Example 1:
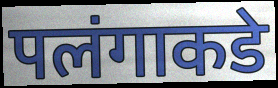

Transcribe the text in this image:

पलंगाकडे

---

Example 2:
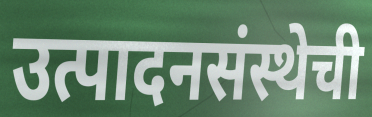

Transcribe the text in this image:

उत्पादनसंस्थेची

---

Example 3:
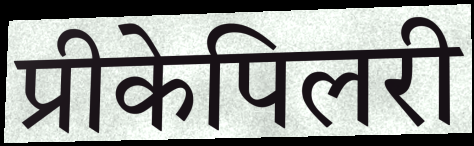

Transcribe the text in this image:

प्रीकेपिलरी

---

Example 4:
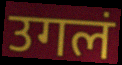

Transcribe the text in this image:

उगलं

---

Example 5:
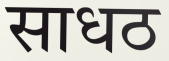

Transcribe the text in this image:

साधठ